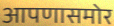
आपणासमोर